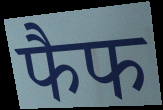
फैफ